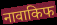
नावाकिफ